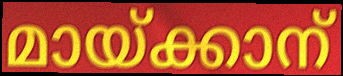
മായ്ക്കാന്